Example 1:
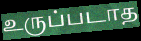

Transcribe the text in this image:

உருப்படாத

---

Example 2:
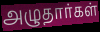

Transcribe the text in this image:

அழுதார்கள்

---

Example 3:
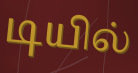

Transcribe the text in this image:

டியில்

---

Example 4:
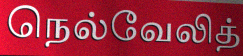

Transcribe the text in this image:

நெல்வேலித்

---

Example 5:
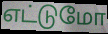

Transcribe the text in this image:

எட்டுமோ